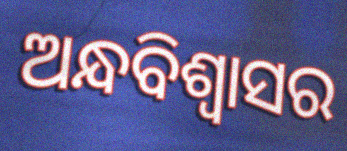
ଅନ୍ଧବିଶ୍ୱାସର